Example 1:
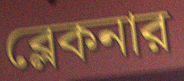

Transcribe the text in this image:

ব্লেকনার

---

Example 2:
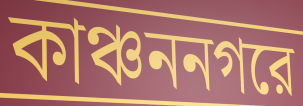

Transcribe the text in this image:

কাঞ্চননগরে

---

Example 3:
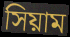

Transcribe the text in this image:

সিয়াম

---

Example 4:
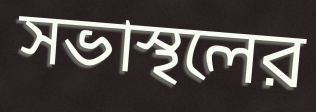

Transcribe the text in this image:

সভাস্থলের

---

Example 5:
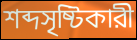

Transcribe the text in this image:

শব্দসৃষ্টিকারী